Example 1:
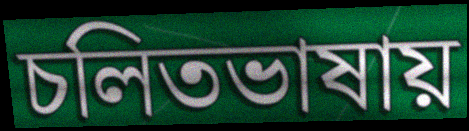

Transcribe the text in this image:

চলিতভাষায়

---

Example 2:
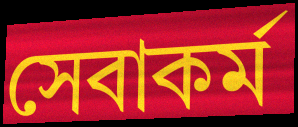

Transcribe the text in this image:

সেবাকর্ম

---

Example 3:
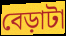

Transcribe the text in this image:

বেড়াটা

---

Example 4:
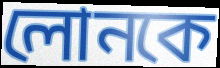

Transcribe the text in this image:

লোনকে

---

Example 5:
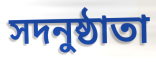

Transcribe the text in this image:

সদনুষ্ঠাতা